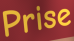
Prise